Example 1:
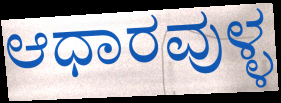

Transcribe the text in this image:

ಆಧಾರವುಳ್ಳ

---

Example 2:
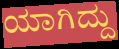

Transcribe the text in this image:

ಯಾಗಿದ್ದು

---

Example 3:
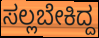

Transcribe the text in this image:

ಸಲ್ಲಬೇಕಿದ್ದ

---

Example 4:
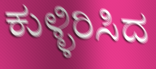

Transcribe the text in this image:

ಕುಳ್ಳಿರಿಸಿದ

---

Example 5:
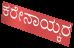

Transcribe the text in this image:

ಕರೇನಾಯ್ಕರ